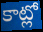
కాట్లో